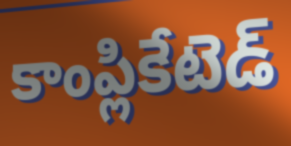
కాంప్లికేటెడ్